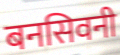
बनसिवनी